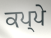
ਕਪ੍ਪੇ